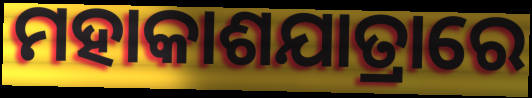
ମହାକାଶଯାତ୍ରାରେ